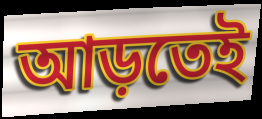
আড়তেই